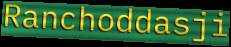
Ranchoddasji